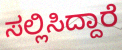
ಸಲ್ಲಿಸಿದ್ದಾರೆ